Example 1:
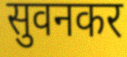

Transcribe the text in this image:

सुवनकर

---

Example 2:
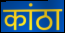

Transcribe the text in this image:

कांठा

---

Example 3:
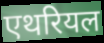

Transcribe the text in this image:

एथरियल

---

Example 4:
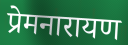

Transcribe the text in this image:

प्रेमनारायण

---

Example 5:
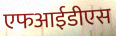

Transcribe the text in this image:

एफआईडीएस